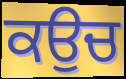
ਕਉਚ